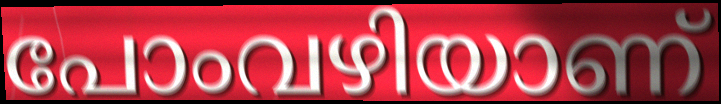
പോംവഴിയാണ്